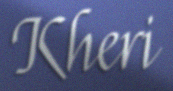
Kheri